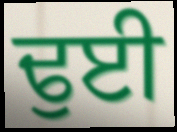
ਢੁਈ